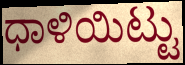
ಧಾಳಿಯಿಟ್ಟು